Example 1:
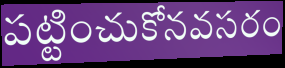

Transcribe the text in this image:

పట్టించుకోనవసరం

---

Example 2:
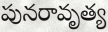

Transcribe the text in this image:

పునరావృత్య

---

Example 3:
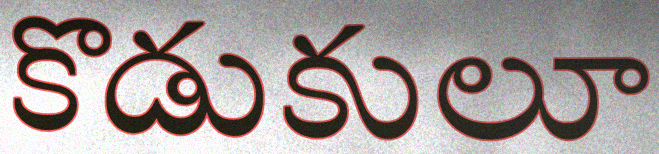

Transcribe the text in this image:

కొడుకులూ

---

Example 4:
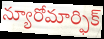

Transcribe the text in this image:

న్యూరోమార్ఫిక్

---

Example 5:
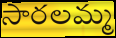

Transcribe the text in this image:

సారలమ్మ